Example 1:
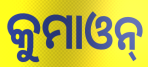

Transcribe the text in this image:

କୁମାଓନ୍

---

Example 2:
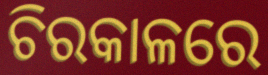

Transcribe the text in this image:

ଚିରକାଳରେ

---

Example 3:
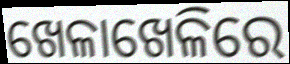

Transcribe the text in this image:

ଖେଳାଖେଳିରେ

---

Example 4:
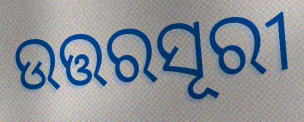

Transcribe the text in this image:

ଉତ୍ତରସୂରୀ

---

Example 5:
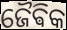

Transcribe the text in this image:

ଜୈଵିକ